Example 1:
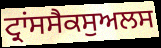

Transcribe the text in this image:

ਟ੍ਰਾਂਸਸੈਕਸੁਅਲਸ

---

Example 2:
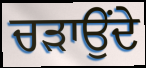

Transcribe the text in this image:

ਚੜਾਉਂਦੇ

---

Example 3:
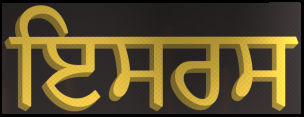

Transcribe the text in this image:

ਇਸਰਸ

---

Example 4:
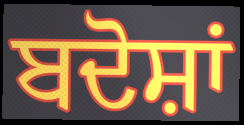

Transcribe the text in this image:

ਬਦੋਸ਼ਾਂ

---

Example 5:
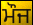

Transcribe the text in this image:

ਮੌਜ